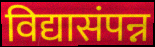
विद्यासंपन्न